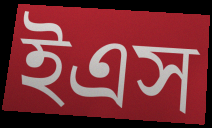
ইএস